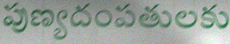
పుణ్యదంపతులకు